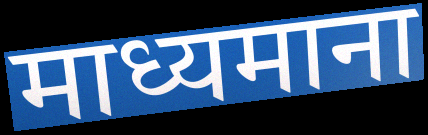
माध्यमाना